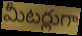
మీటర్లుగా